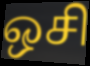
ஒசி